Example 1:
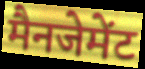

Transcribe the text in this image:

मैनजेमेंट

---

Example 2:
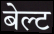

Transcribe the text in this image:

बेल्‍ट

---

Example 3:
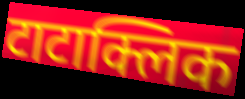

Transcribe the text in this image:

टाटाक्लिक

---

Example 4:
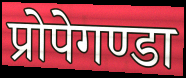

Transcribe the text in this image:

प्रोपेगण्डा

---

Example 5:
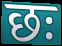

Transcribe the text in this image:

छः